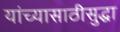
यांच्यासाठीसुद्धा